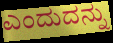
ಎಂದುದನ್ನು